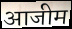
आजीम